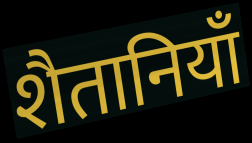
शैतानियाँ